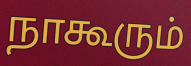
நாகூரும்